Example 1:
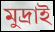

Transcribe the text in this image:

মুদ্রাই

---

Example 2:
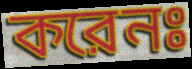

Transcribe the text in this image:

করেনঃ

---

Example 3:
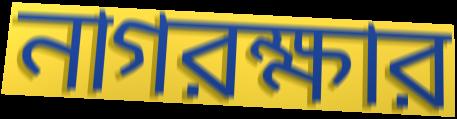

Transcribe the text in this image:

নাগরক্ষার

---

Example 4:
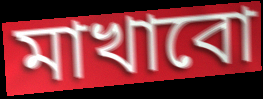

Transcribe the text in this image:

মাখাবো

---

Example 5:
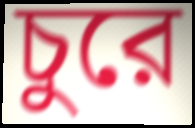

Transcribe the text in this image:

চুরে